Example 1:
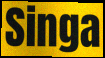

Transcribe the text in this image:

Singa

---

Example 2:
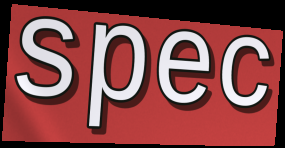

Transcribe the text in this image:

spec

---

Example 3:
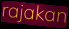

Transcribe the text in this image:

rajakan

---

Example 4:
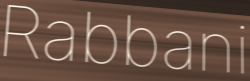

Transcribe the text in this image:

Rabbani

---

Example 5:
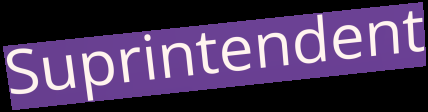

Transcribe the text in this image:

Suprintendent